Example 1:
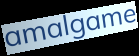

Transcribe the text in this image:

amalgame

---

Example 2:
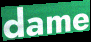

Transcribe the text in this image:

dame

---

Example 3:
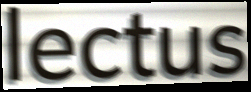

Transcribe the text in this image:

lectus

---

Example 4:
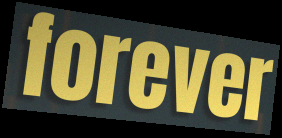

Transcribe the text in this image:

forever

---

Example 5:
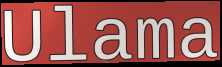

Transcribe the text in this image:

Ulama